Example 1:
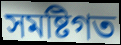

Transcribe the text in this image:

সমষ্টিগত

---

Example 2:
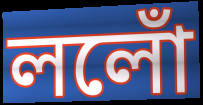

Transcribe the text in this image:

ললোঁ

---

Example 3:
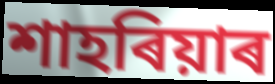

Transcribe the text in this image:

শাহৰিয়াৰ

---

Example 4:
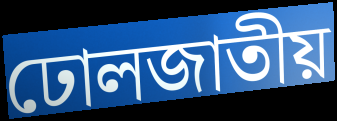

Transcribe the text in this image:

ঢোলজাতীয়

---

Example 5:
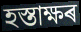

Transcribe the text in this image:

হস্তাক্ষৰ